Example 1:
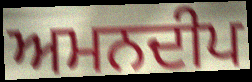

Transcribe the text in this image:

ਅਮਨਦੀਪ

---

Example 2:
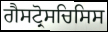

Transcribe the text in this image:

ਗੈਸਟ੍ਰੋਸਚਿਸਿਸ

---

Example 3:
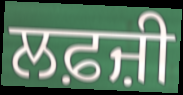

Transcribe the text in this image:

ਲਫ਼ਜ਼ੀ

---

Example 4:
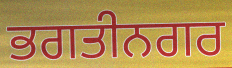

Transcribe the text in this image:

ਭਗਤੀਨਗਰ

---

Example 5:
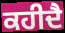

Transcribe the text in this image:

ਕਹੀਦੈ